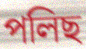
পলিছ